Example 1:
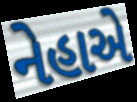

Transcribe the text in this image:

નેહાએ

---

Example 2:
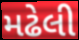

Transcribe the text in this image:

મઢેલી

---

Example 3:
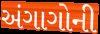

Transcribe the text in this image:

અંગાગોની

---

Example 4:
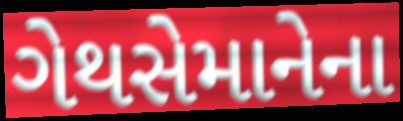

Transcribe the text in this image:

ગેથસેમાનેના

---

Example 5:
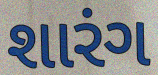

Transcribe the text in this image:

શારંગ